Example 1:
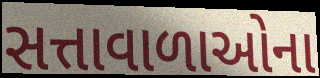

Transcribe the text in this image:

સત્તાવાળાઓના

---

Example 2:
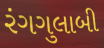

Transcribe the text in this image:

રંગગુલાબી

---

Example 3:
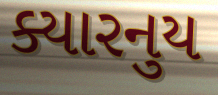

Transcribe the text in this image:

ક્યારનુય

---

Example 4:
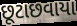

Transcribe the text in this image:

છૂટાછવાયા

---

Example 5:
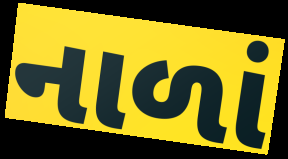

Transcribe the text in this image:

નાળાં